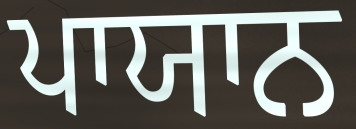
ਪਾਯਾਨ